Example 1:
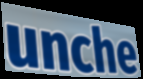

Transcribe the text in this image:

unche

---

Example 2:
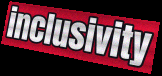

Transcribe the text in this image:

inclusivity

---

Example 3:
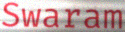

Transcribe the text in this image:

Swaram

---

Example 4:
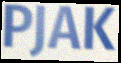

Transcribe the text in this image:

PJAK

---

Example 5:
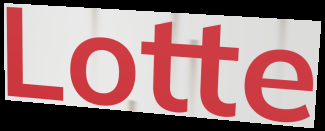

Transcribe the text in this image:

Lotte